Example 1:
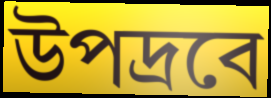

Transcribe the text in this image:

উপদ্রবে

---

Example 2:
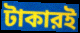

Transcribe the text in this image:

টাকারই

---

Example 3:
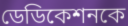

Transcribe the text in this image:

ডেডিকেশনকে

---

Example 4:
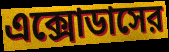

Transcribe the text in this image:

এক্সোডাসের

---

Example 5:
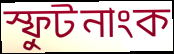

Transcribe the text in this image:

স্ফুটনাংক